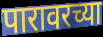
पारावरच्या